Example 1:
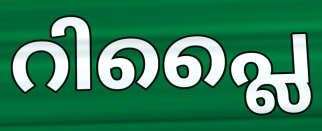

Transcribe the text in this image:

റിപ്ലൈ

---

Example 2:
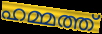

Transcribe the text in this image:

ഹമ്മത്ത്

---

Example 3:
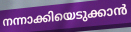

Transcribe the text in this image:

നന്നാക്കിയെടുക്കാൻ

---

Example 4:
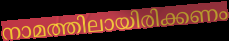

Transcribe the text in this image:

നാമത്തിലായിരിക്കണം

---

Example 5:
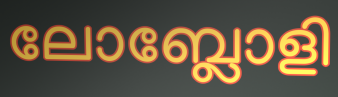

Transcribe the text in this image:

ലോബ്ലോളി